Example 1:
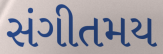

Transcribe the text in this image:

સંગીતમય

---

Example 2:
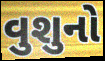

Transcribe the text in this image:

વુશુનો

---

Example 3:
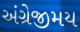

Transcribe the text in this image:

અંગ્રેજીમય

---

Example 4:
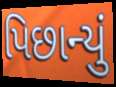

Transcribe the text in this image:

પિછાન્યું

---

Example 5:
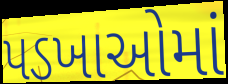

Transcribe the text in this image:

પડખાઓમાં